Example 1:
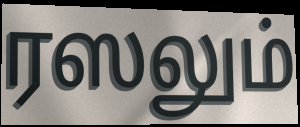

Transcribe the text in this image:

ரஸலும்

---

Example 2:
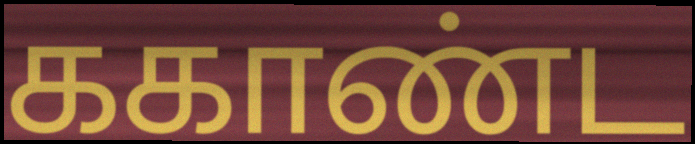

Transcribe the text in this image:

ககாண்ட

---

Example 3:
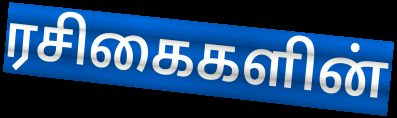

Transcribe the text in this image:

ரசிகைகளின்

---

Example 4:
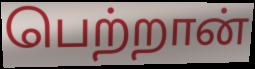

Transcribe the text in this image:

பெற்றான்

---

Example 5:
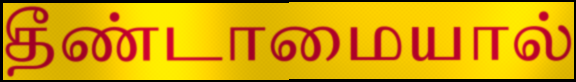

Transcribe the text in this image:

தீண்டாமையால்